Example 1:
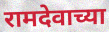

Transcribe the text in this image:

रामदेवाच्या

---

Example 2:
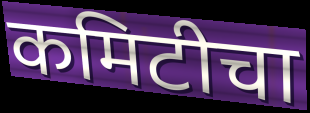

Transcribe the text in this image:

कमिटीचा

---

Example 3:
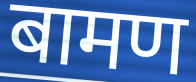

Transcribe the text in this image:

बामण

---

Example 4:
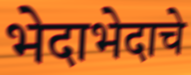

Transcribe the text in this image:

भेदाभेदाचे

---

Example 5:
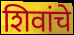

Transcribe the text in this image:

शिवांचे